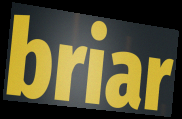
briar